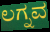
ಲಗ್ನವ